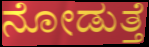
ನೋಡುತ್ತೆ